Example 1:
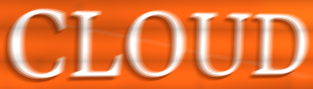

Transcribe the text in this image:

CLOUD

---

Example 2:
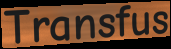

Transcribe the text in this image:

Transfus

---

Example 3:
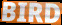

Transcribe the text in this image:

BIRD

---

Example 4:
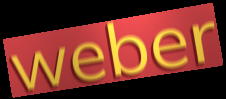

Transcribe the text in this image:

weber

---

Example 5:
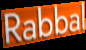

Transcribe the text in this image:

Rabbal